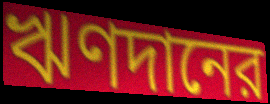
ঋণদানের